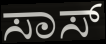
ಸಾಸ್